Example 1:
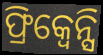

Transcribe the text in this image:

ଫ୍ରିକ୍ୱେନ୍ସି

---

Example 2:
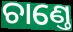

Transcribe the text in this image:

ଚାଣ୍ତେ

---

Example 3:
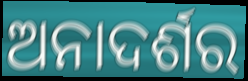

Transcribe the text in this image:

ଅନାଦର୍ଶର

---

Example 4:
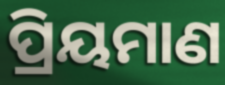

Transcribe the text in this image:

ପ୍ରିୟମାଣ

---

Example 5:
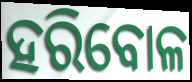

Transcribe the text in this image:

ହରିବୋଳ